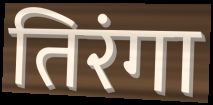
तिरंगा